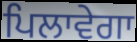
ਪਿਲਾਵੇਗਾ